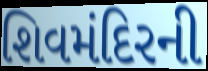
શિવમંદિરની